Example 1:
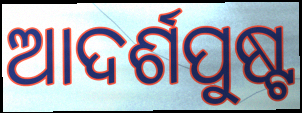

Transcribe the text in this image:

ଆଦର୍ଶପୁଷ୍ଟ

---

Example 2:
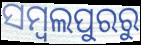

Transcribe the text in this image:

ସମ୍ବଲପୁରରୁ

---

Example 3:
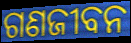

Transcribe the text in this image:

ଗଣଜୀବନ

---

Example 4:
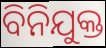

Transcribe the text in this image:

ବିନିଯୁକ୍ତ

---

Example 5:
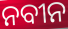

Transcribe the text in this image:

ନବୀନ